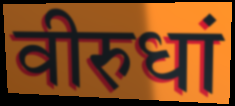
वीरुधां